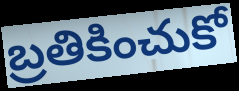
బ్రతికించుకో